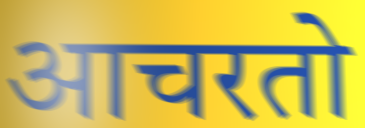
आचरतो